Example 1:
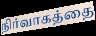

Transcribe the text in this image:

நிர்வாகத்தை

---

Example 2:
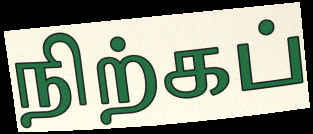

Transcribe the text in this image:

நிற்கப்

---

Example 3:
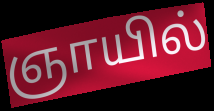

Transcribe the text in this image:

ஞாயில்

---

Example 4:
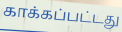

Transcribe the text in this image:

காக்கப்பட்டது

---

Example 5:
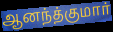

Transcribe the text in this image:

ஆனந்த்குமார்